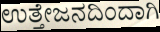
ಉತ್ತೇಜನದಿಂದಾಗಿ